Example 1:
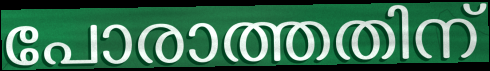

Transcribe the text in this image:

പോരാത്തതിന്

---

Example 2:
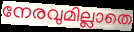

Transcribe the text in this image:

നേരവുമില്ലാതെ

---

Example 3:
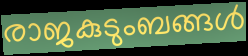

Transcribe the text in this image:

രാജകുടുംബങ്ങൾ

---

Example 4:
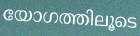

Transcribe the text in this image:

യോഗത്തിലൂടെ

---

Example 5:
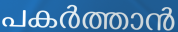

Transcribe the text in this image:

പകർത്താൻ